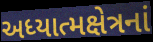
અધ્યાત્મક્ષેત્રનાં